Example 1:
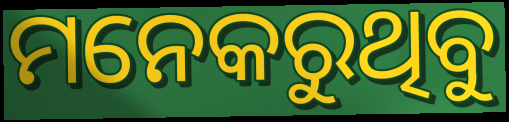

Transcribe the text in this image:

ମନେକରୁଥିବୁ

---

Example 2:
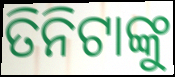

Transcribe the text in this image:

ତିନିଟାଙ୍କୁ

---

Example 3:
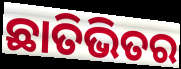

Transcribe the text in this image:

ଛାତିଭିତର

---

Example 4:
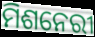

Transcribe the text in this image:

ମିଶନେରୀ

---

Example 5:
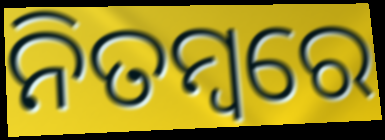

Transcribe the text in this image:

ନିତମ୍ବରେ